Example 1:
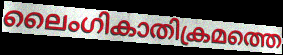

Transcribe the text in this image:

ലൈംഗികാതിക്രമത്തെ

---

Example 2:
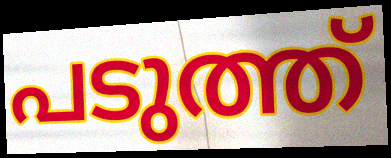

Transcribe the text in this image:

പടുത്ത്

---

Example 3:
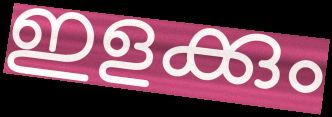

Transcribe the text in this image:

ഇളക്കും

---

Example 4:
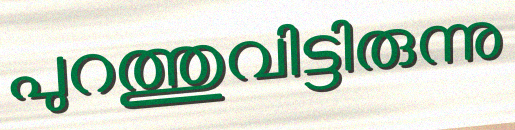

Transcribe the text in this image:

പുറത്തുവിട്ടിരുന്നു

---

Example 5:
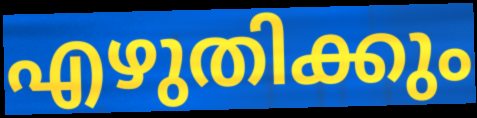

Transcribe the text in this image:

എഴുതിക്കും